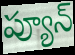
ప్యూన్